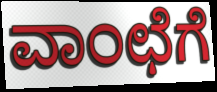
ವಾಂಛೆಗೆ